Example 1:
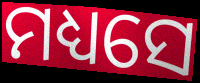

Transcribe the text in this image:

ମଧ୍ୟସେ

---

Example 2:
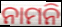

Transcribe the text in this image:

ନାମନି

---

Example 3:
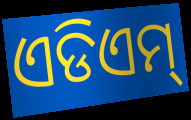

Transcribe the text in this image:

ଏଡିଏମ୍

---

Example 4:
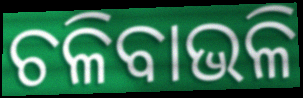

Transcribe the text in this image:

ଚଳିବାଭଳି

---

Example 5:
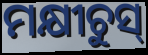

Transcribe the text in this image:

ମକ୍ଷୀଚୁସ୍